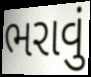
ભરાવું